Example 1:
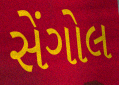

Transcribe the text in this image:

સેંગોલ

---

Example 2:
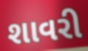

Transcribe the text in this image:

શાવરી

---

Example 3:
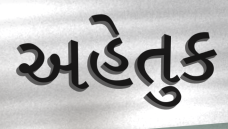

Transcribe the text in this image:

અહેતુક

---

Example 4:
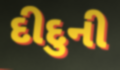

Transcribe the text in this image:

દીદુની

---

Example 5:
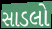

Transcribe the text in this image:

સાડલો